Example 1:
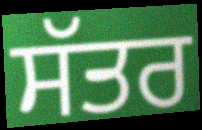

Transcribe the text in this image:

ਸੱਤਰ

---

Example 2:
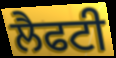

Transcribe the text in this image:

ਲੈਫਟੀ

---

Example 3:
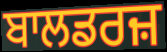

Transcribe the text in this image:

ਬਾਲਡਰਜ਼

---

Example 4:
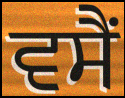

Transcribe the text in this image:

ਵਸੈਂ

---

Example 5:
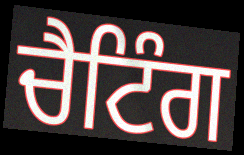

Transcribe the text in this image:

ਚੈਟਿੰਗ